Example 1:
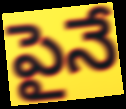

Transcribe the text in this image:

పైనే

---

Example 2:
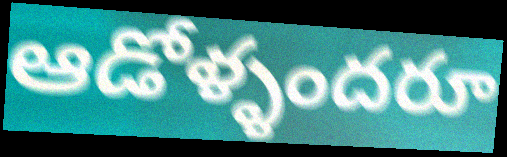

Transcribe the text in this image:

ఆడోళ్ళందరూ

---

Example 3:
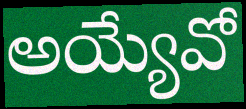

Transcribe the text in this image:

అయ్యేవో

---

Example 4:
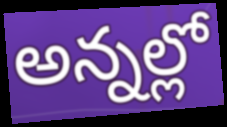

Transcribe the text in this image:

అన్నల్లో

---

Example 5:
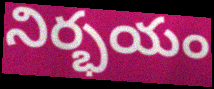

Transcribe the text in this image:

నిర్భయం